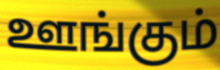
ஊங்கும்